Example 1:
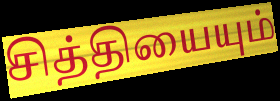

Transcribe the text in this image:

சித்தியையும்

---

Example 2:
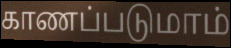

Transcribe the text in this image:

காணப்படுமாம்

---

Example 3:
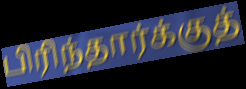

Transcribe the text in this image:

பிரிந்தார்க்குத்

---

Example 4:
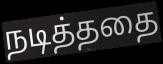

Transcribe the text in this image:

நடித்ததை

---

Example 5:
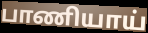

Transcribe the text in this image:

பாணியாய்